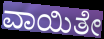
ವಾಯಿತೇ